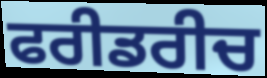
ਫਰੀਡਰੀਚ